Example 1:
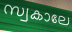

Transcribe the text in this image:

സ്വകാലേ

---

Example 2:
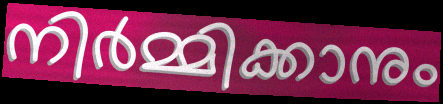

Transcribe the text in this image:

നിർമ്മിക്കാനും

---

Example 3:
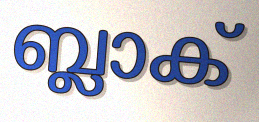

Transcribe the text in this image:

ബ്ലാക്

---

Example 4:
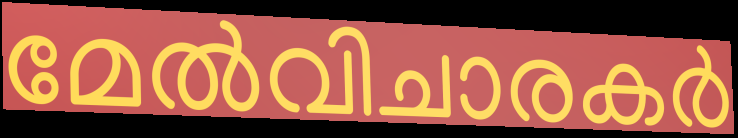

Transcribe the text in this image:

മേൽവിചാരകർ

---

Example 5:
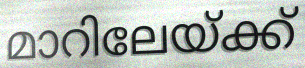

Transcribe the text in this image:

മാറിലേയ്ക്ക്